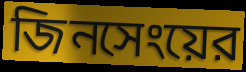
জিনসেংয়ের